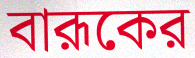
বারূকের